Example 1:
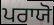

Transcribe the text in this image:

ਪਰਾਯੋ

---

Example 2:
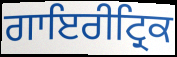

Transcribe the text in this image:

ਗਾਇਰੀਟ੍ਰਿਕ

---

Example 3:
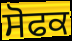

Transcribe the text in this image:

ਸੋਫਕ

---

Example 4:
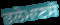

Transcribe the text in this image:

ਭਲੇਮਾਣਸੋ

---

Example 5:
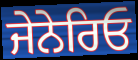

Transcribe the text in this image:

ਜੇਨੇਰਿਓ